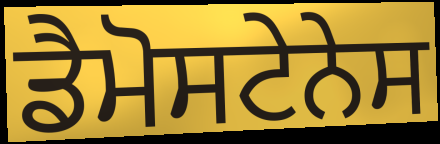
ਡੈਮੋਸਟੇਨੇਸ